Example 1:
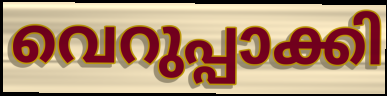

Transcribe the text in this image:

വെറുപ്പാക്കി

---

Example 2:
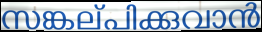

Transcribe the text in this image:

സങ്കല്‌പിക്കുവാൻ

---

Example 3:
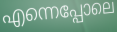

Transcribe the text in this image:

എന്നെപ്പോലെ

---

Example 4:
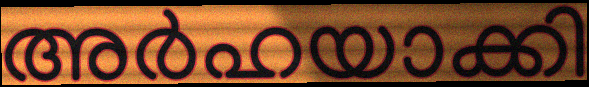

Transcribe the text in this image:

അർഹയാക്കി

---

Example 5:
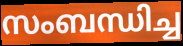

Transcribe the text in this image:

സംബന്ധിച്ച